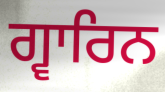
ਗ੍ਵਾਰਿਨ